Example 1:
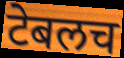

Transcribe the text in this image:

टेबलच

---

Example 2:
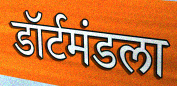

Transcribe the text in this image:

डॉर्टमंडला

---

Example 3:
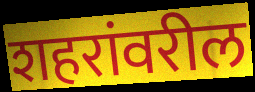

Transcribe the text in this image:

शहरांवरील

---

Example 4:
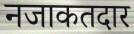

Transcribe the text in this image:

नजाकतदार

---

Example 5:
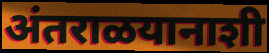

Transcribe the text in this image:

अंतराळयानाशी